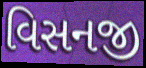
વિસનજી